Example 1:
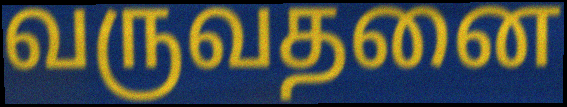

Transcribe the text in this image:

வருவதனை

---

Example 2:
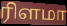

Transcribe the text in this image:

ரிளமா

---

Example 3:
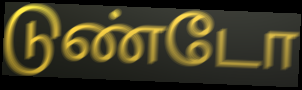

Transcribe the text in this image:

டுண்டோ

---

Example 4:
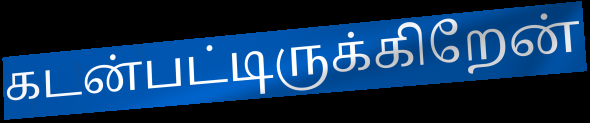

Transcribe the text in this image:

கடன்பட்டிருக்கிறேன்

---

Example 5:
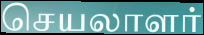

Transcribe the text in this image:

செயலாளர்